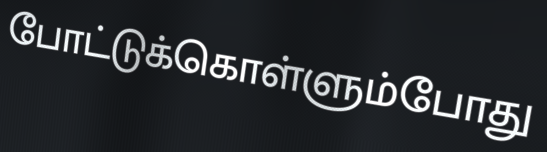
போட்டுக்கொள்ளும்போது